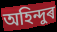
অহিন্দুৰ